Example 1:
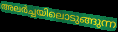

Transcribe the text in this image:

അലർച്ചയിലൊടുങ്ങുന്ന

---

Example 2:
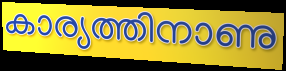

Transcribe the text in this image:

കാര്യത്തിനാണു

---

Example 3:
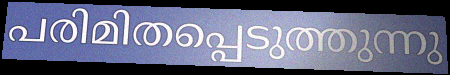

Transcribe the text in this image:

പരിമിതപ്പെടുത്തുന്നു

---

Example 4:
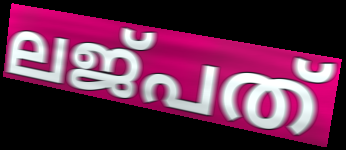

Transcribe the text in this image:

ലജ്പത്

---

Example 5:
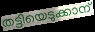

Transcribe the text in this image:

തട്ടിയെടുക്കാന്